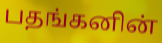
பதங்கனின்